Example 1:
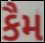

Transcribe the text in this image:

કૈમ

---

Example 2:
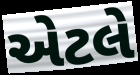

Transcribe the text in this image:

એટલે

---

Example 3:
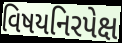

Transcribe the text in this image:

વિષયનિરપેક્ષ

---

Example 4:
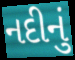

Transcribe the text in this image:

નદીનું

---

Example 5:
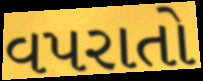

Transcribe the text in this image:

વપરાતો